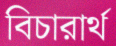
বিচারার্থ